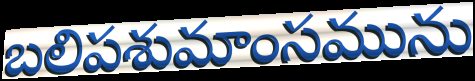
బలిపశుమాంసమును